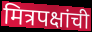
मित्रपक्षांची